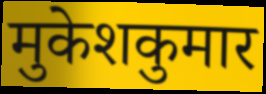
मुकेशकुमार